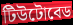
টিউটোবেড